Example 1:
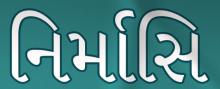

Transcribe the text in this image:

નિર્માસિ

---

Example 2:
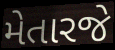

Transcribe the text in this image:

મેતારજે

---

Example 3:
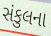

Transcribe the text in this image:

સંકુલના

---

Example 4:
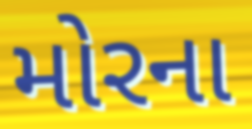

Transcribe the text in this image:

મોરના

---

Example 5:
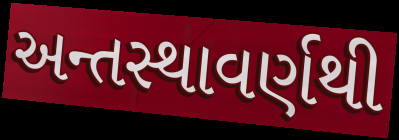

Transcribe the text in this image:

અન્તસ્થાવર્ણથી